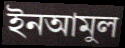
ইনআমুল